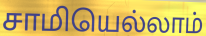
சாமியெல்லாம்